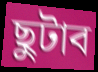
ছুটাব